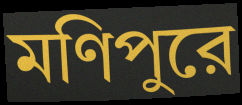
মণিপুরে